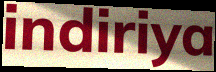
indiriya